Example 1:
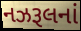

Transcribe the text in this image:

નઝરૂલનાં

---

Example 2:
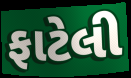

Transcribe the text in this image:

ફાટેલી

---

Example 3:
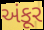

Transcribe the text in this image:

અંકૂર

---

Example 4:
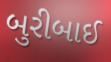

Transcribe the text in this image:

બુરીબાઈ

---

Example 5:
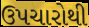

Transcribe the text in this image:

ઉપચારોથી